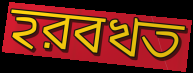
হরবখত